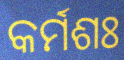
କର୍ମଶଃ